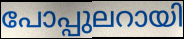
പോപ്പുലറായി